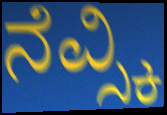
ನೆವ್ಸ್ಕಿ